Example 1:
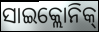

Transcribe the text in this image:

ସାଇକ୍ଲୋନିକ୍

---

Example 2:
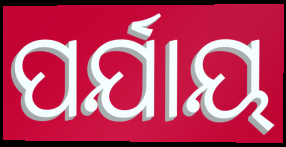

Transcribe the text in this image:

ପର୍ଯାୟ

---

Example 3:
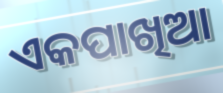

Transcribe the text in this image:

ଏକପାଖିଆ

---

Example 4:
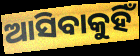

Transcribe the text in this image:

ଆସିବାକୁହିଁ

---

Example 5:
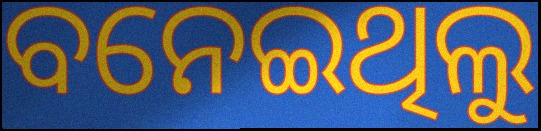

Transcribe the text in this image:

ବନେଇଥିଲୁ